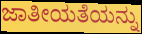
ಜಾತೀಯತೆಯನ್ನು